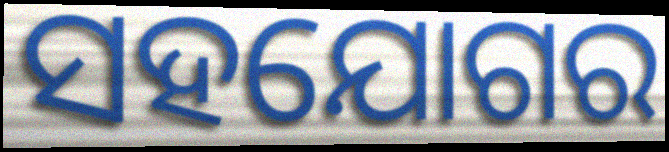
ସହଯୋଗର